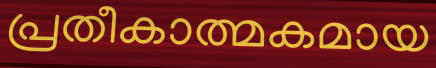
പ്രതീകാത്മകമായ